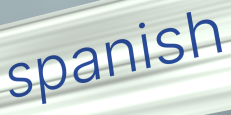
spanish